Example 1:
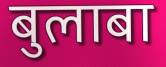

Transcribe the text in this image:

बुलाबा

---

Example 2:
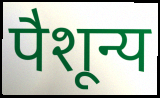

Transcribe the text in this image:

पैशून्य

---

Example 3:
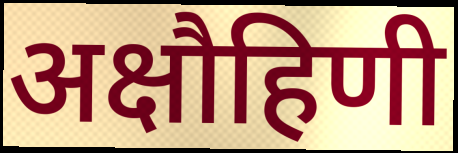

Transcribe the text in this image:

अक्षौहिणी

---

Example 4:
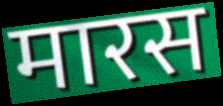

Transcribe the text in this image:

मारस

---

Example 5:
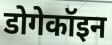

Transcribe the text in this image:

डोगेकॉइन